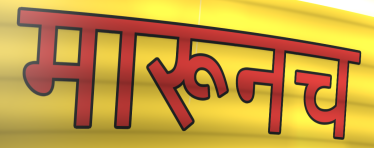
मारूनच